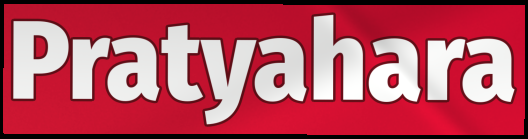
Pratyahara